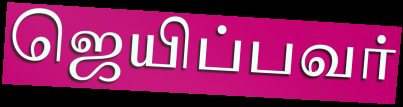
ஜெயிப்பவர்